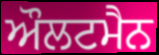
ਔਲਟਮੈਨ